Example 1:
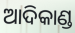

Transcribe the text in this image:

ଆଦିକାଣ୍ଡ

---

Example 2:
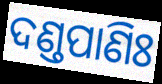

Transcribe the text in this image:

ଦଣ୍ଡପାଣିଃ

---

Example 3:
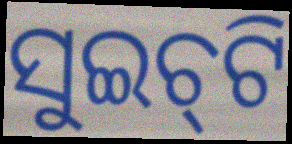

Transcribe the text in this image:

ସୁଇଚ୍‌ଟି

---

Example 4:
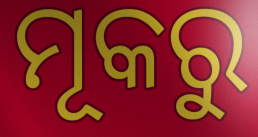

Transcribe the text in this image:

ମୂକରୁ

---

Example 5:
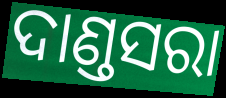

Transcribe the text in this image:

ଦାଣ୍ଡସରା